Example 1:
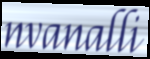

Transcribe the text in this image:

nvanalli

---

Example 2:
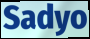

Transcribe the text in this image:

Sadyo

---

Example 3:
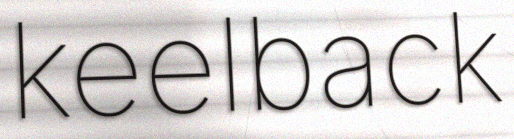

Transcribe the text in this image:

keelback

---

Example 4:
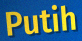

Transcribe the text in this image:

Putih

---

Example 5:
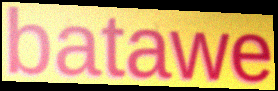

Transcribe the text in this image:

batawe